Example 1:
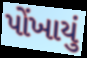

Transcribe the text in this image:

પોંખાયું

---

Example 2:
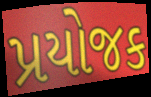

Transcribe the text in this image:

પ્રયોજક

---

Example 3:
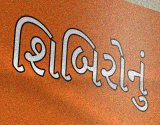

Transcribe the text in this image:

શિબિરોનું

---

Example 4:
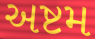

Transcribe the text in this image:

અષ્ટમ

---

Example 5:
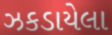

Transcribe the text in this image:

ઝકડાયેલા